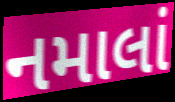
નમાલાં